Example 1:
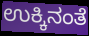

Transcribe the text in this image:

ಉಕ್ಕಿನಂತೆ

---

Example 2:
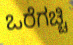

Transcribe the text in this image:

ಒರೆಗಚ್ಚಿ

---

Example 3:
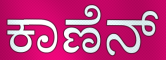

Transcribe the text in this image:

ಕಾಣೆನ್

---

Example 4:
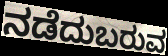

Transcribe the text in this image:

ನಡೆದುಬರುವ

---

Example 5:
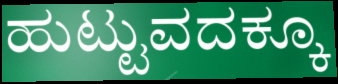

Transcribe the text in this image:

ಹುಟ್ಟುವದಕ್ಕೂ